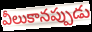
వీలుకానప్పుడు